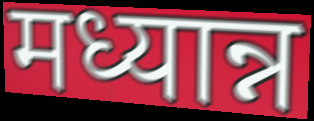
मध्यान्न